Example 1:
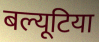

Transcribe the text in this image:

बल्यूटिया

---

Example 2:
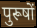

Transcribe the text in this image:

पुरूषों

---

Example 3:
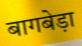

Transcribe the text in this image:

बागबेड़ा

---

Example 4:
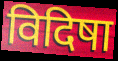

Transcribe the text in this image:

विदिषा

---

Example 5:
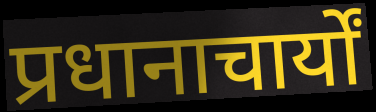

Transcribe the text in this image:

प्रधानाचार्यों